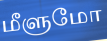
மீளுமோ